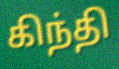
கிந்தி